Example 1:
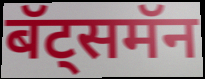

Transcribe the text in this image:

बॅट्समॅन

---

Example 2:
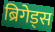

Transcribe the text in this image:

ब्रिगेड्स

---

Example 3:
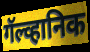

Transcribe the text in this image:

गॅल्व्हानिक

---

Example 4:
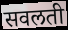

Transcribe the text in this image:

सवलती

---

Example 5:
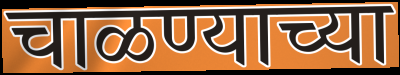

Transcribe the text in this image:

चाळण्याच्या